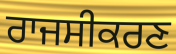
ਰਾਜਸੀਕਰਣ